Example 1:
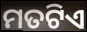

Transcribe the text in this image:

ମତଟିଏ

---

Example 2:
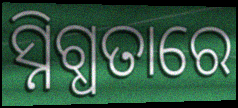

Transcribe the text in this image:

ସ୍ନିଗ୍ଧତାରେ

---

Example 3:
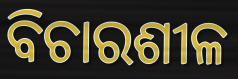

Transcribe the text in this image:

ବିଚାରଶୀଳ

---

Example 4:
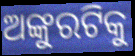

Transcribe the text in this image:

ଅଙ୍କୁରଟିକୁ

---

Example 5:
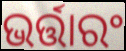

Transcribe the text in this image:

ଭର୍ତ୍ତାରଂ